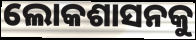
ଲୋକଶାସନକୁ